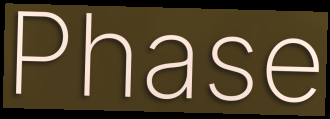
Phase